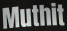
Muthit